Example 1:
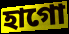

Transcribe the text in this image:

হাগো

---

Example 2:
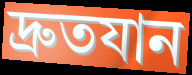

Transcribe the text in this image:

দ্রুতযান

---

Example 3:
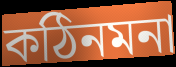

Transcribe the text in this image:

কঠিনমনা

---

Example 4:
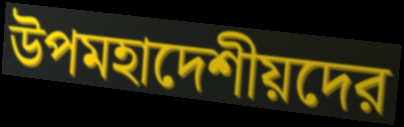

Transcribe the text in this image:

উপমহাদেশীয়দের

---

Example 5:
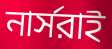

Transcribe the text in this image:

নার্সরাই